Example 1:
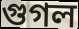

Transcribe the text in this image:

গুগল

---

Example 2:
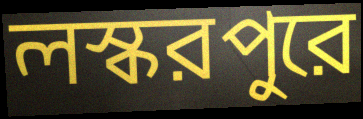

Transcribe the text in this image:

লস্করপুরে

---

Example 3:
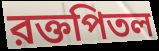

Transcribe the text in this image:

রক্তপিতল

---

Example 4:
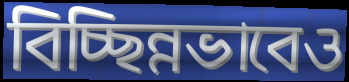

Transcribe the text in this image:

বিচ্ছিন্নভাবেও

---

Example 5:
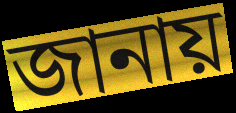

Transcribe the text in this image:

জানায়